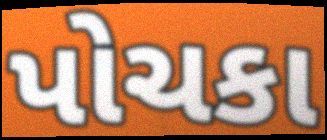
પોચકા